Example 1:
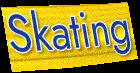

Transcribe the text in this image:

Skating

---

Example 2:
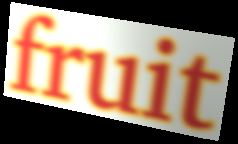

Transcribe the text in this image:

fruit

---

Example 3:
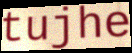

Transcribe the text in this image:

tujhe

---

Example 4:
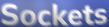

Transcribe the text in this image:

Sockets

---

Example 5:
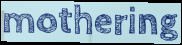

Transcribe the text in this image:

mothering